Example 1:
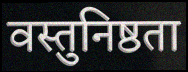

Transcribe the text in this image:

वस्तुनिष्ठता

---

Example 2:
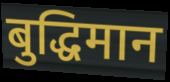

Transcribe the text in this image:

बुद्धिमान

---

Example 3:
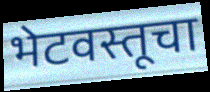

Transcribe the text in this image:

भेटवस्तूचा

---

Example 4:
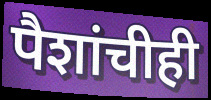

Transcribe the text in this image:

पैशांचीही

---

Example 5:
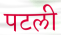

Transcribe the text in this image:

पटली